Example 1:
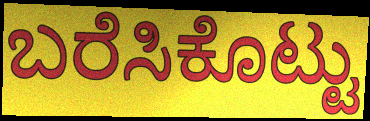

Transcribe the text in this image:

ಬರೆಸಿಕೊಟ್ಟು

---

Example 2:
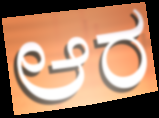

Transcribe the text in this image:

ಆರ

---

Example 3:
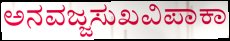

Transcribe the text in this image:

ಅನವಜ್ಜಸುಖವಿಪಾಕಾ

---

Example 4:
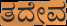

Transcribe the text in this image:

ತದೇವ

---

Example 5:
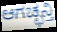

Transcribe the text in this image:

ಆಗಚ್ಛನ್ತಿ